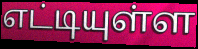
எட்டியுள்ள